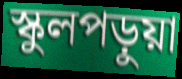
স্কুলপড়ুয়া